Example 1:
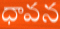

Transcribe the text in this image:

ధావన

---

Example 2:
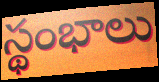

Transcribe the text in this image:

స్థంభాలు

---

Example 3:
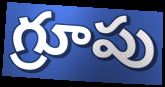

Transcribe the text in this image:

గ్రూపు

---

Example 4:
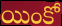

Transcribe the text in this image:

యింకో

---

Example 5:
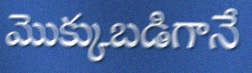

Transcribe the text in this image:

మొక్కుబడిగానే